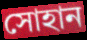
সোহান